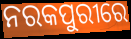
ନରକପୁରୀରେ